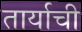
तार्याची